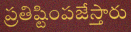
ప్రతిష్టింపజేస్తారు